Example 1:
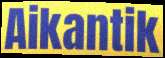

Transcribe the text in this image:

Aikantik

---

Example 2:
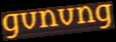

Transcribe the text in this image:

gunung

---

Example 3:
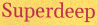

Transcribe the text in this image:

Superdeep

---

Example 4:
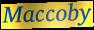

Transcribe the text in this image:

Maccoby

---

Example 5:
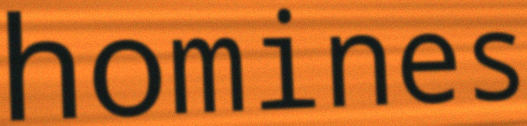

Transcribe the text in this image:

homines